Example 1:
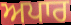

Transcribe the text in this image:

ਅਪਾਰ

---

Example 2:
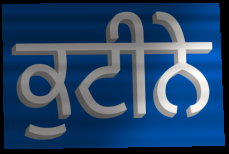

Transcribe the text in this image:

ਕੁਟੀਨੇ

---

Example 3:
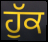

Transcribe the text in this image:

ਹੁੱਕ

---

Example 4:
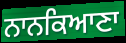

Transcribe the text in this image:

ਨਾਨਕਿਆਣਾ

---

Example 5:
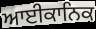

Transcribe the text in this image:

ਆਈਕਾਨਿਕ